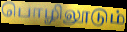
பொழிலூடும்